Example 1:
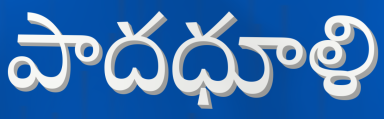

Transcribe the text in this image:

పాదధూళి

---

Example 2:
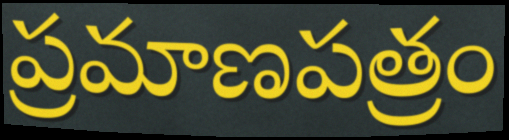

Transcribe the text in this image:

ప్రమాణపత్రం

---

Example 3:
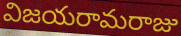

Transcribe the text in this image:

విజయరామరాజు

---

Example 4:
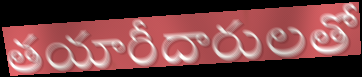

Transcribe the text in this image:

తయారీదారులతో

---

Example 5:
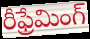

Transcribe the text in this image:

రీఫ్రేమింగ్